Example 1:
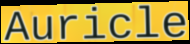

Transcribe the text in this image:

Auricle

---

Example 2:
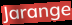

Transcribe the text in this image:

Jarange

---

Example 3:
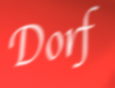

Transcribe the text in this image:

Dorf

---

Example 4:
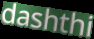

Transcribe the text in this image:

dashthi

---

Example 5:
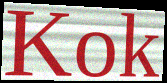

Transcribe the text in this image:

Kok